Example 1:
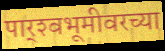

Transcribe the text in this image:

पार्श्वभूमीवरच्या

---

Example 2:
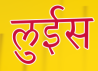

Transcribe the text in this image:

लुईस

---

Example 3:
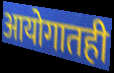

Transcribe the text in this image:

आयोगातही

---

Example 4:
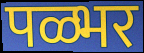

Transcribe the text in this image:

पळ्भर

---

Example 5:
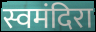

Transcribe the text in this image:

स्वमंदिरा